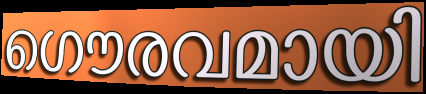
ഗൌരവമായി